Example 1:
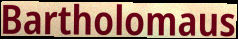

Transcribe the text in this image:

Bartholomaus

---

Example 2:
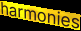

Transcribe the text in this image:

harmonies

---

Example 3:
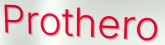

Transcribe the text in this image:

Prothero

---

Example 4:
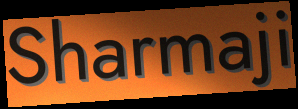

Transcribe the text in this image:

Sharmaji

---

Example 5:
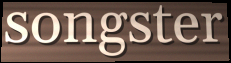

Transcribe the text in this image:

songster